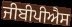
ਜੀਬੀਪੀਐਸ